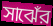
সাঝেঁর